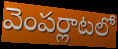
వెంపర్లాటలో